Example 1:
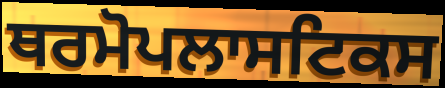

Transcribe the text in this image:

ਥਰਮੋਪਲਾਸਟਿਕਸ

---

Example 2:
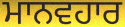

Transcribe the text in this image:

ਮਾਨਵਹਾਰ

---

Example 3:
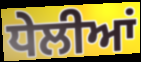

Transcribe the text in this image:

ਧੇਲੀਆਂ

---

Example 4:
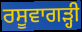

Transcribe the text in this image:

ਰਸੂਵਾਗੜ੍ਹੀ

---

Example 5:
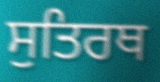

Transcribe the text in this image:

ਸੁਤਿਰਥ